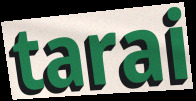
tarai